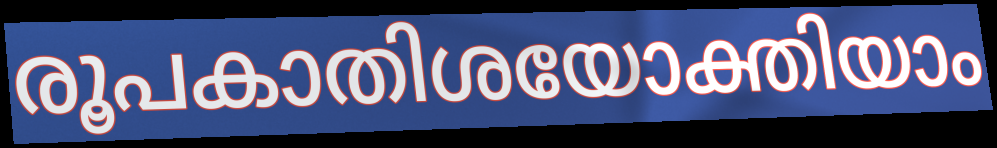
രൂപകാതിശയോക്തിയാം